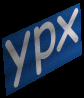
ypx